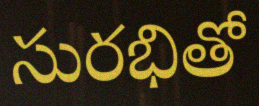
సురభితో